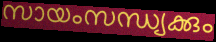
സായംസന്ധ്യക്കും